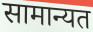
सामान्यत